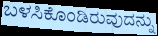
ಬಳಸಿಕೊಂಡಿರುವುದನ್ನು